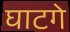
घाटगे